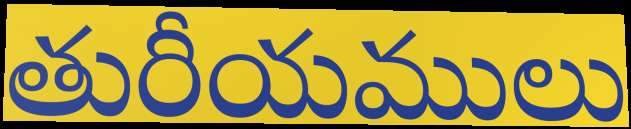
తురీయములు